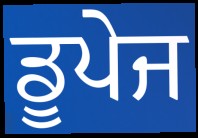
ਡੂਪੇਜ